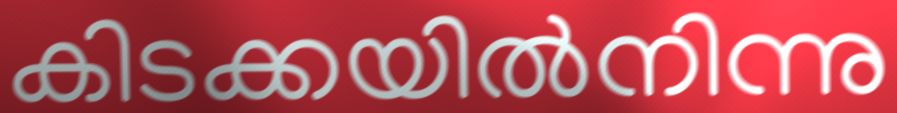
കിടക്കയിൽനിന്നു